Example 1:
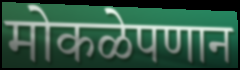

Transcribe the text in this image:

मोकळेपणान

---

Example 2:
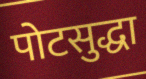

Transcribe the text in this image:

पोटसुद्धा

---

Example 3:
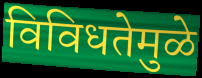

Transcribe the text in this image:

विविधतेमुळे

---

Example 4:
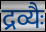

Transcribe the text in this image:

द्रव्यैः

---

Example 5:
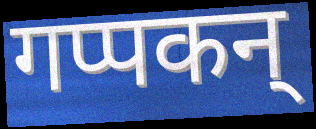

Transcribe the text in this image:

गप्पकन्